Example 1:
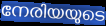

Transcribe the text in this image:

നേരിയയുടെ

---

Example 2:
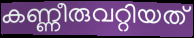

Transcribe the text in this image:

കണ്ണീരുവറ്റിയത്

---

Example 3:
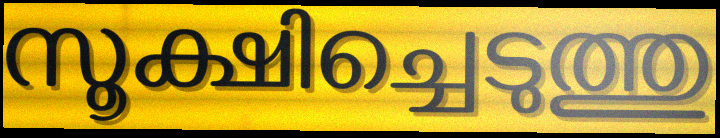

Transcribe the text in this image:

സൂക്ഷിച്ചെടുത്തു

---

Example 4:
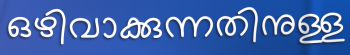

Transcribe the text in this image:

ഒഴിവാക്കുന്നതിനുള്ള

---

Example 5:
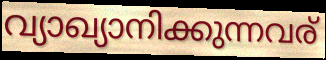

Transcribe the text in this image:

വ്യാഖ്യാനിക്കുന്നവര്